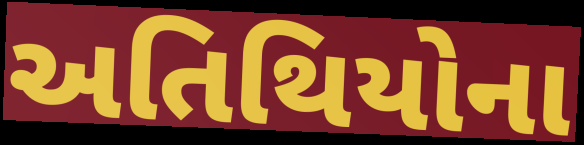
અતિથિયોના